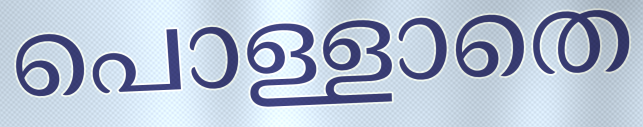
പൊള്ളാതെ